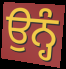
ਉਨ੍ਹੰ